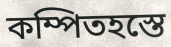
কম্পিতহস্তে